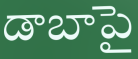
డాబాపై